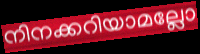
നിനക്കറിയാമല്ലോ